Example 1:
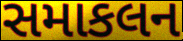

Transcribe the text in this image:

સમાકલન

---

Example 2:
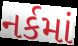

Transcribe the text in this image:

નર્કમાં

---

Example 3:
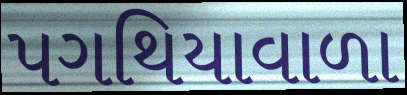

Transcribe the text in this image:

પગથિયાવાળા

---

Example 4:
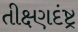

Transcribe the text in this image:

તીક્ષ્ણદંષ્ટ્ર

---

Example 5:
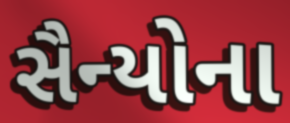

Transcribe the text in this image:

સૈન્યોના